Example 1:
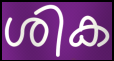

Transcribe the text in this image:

ശിക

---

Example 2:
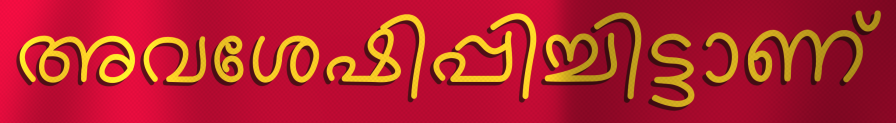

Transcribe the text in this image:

അവശേഷിപ്പിച്ചിട്ടാണ്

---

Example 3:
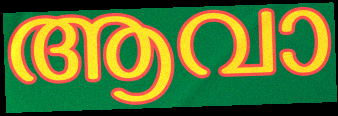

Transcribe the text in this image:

ആവാ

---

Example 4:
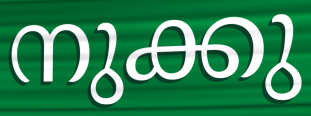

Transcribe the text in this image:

നുക്കു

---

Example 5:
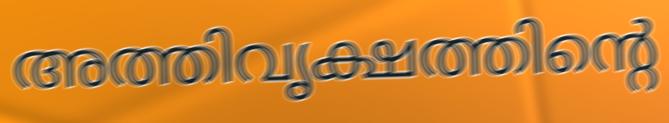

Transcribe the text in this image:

അത്തിവൃക്ഷത്തിന്റെ